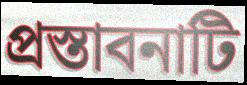
প্রস্তাবনাটি